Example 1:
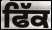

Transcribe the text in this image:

ਫਿੱਕ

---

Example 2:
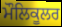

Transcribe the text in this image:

ਮੌਲਿਕੂਲਰ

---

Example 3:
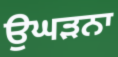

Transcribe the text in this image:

ਉਘੜਨਾ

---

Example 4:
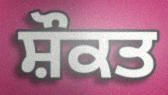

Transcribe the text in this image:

ਸ਼ੌਕਤ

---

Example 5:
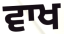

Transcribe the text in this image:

ਵਾਖ